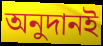
অনুদানই